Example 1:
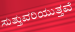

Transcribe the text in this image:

ಸುತ್ತುವರಿಯುತ್ತವೆ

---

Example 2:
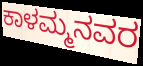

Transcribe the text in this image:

ಕಾಳಮ್ಮನವರ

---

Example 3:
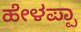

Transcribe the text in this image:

ಹೇಳಪ್ಪಾ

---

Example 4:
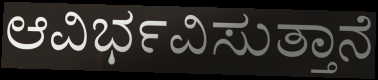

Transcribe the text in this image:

ಆವಿರ್ಭವಿಸುತ್ತಾನೆ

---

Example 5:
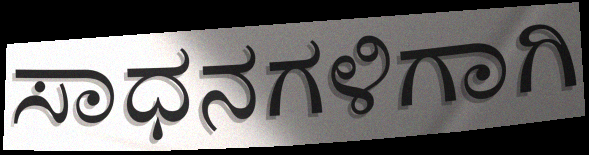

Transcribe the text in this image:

ಸಾಧನಗಳಿಗಾಗಿ